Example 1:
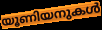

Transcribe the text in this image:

യൂണിയനുകൾ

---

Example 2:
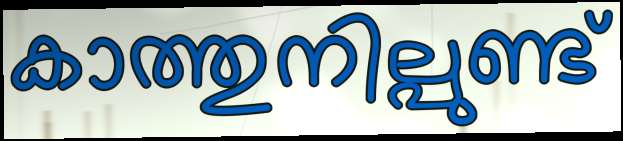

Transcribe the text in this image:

കാത്തുനില്പുണ്ട്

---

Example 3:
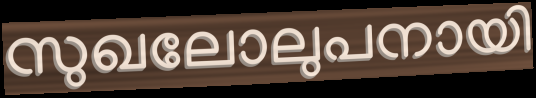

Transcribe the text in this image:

സുഖലോലുപനായി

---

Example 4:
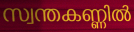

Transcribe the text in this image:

സ്വന്തകണ്ണിൽ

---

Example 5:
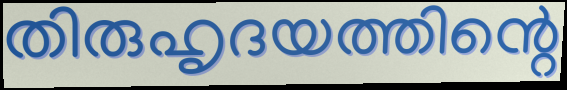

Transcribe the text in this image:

തിരുഹൃദയത്തിന്റെ